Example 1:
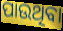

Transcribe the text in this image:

ପାଉଥିବା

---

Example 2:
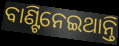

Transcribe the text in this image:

ବାଣ୍ଟିନେଇଥାନ୍ତି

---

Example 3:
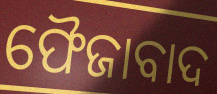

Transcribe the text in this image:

ଫୈଜାବାଦ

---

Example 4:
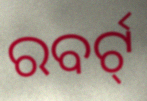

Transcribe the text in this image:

ରବର୍ଟ୍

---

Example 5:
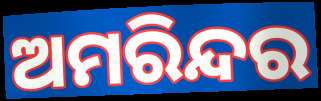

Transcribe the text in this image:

ଅମରିନ୍ଦର